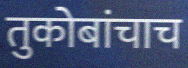
तुकोबांचाच